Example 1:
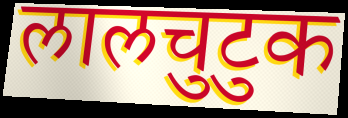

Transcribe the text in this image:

लालचुटुक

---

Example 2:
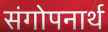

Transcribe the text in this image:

संगोपनार्थ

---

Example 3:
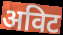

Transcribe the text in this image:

अविट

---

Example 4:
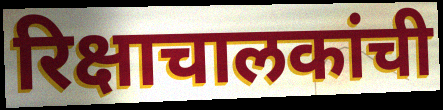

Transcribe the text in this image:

रिक्षाचालकांची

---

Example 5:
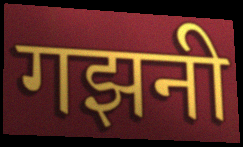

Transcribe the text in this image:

गझनी